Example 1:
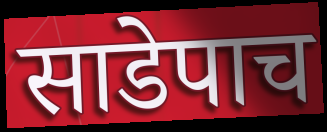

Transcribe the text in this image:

साडेपाच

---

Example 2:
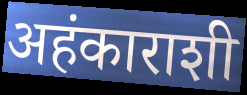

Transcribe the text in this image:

अहंकाराशी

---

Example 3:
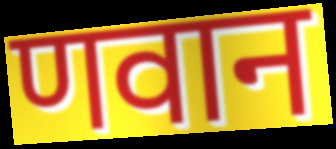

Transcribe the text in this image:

णवान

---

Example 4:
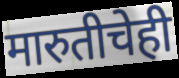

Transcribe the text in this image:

मारुतीचेही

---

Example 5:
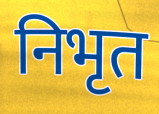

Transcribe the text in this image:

निभृत